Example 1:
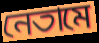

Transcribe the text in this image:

নেতামে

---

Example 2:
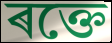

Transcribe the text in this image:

ৰক্তে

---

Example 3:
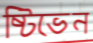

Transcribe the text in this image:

ষ্টিভেন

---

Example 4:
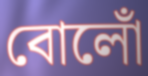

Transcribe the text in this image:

বোলোঁ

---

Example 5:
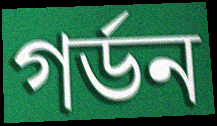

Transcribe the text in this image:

গৰ্ডন